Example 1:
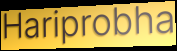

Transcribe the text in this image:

Hariprobha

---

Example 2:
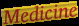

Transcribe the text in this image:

Medicine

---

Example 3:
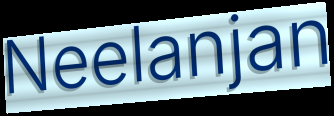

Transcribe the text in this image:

Neelanjan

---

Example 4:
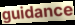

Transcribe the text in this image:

guidance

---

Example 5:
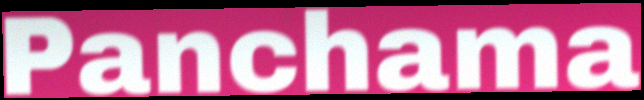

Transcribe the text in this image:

Panchama